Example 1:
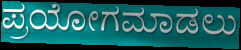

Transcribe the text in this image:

ಪ್ರಯೋಗಮಾಡಲು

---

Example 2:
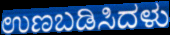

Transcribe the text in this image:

ಉಣಬಡಿಸಿದಳು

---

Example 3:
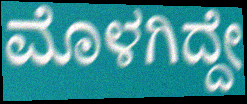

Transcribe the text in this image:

ಮೊಳಗಿದ್ದೇ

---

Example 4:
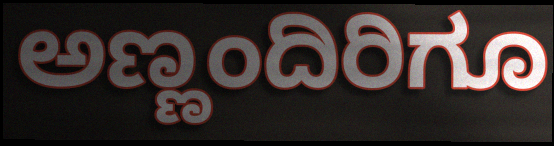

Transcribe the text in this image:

ಅಣ್ಣಂದಿರಿಗೂ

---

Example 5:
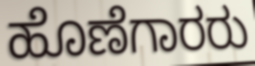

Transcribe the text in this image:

ಹೊಣೆಗಾರರು